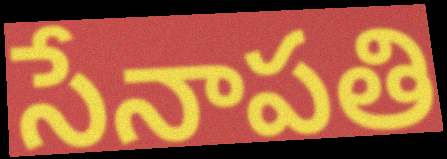
సేనాపతి